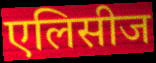
एलिसीज